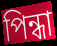
পিন্ধা